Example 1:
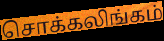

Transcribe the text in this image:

சொக்கலிங்கம்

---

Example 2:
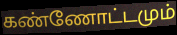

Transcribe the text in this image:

கண்ணோட்டமும்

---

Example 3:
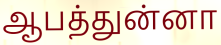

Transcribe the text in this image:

ஆபத்துன்னா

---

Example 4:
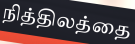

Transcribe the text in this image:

நித்திலத்தை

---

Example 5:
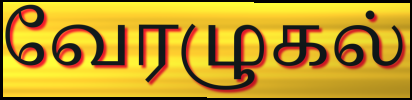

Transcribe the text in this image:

வேரழுகல்